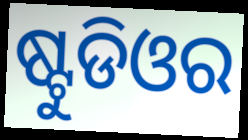
ଷ୍ଟୁଡିଓର